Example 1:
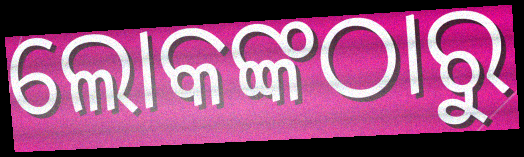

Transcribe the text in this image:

ଲୋକଙ୍କଠାରୁ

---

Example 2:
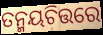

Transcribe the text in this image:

ତନ୍ମୟଚିତ୍ତରେ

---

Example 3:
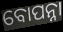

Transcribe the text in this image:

ବୋପନ୍ନା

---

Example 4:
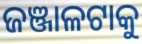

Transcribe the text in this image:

ଜଞ୍ଜାଳଟାକୁ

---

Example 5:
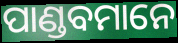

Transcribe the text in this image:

ପାଣ୍ଡବମାନେ